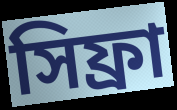
সিফ্রা